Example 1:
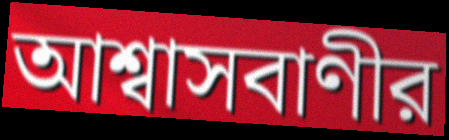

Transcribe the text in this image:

আশ্বাসবাণীর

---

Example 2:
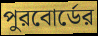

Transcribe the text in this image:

পুরবোর্ডের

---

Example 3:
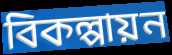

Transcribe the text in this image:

বিকল্পায়ন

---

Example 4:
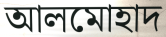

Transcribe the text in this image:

আলমোহাদ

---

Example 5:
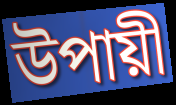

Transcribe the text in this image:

উপায়ী